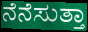
ನೆನೆಸುತ್ತಾ